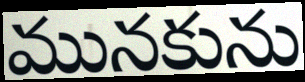
మునకును